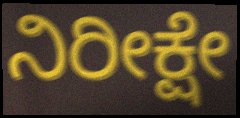
ನಿರೀಕ್ಷೇ